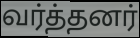
வர்த்தனர்